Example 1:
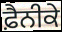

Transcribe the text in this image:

ਫ਼ੈਨੀਕੇ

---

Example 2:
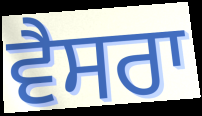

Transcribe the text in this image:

ਵੈਸਰਾ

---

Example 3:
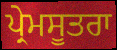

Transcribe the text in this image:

ਪ੍ਰੇਮਸੂਤਰਾ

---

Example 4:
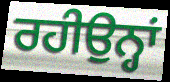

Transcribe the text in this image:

ਰਹੀਉਨ੍ਹਾਂ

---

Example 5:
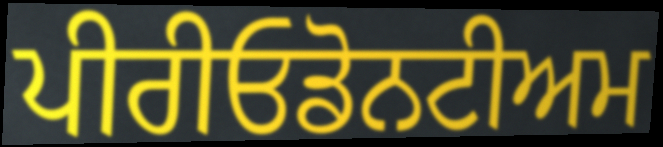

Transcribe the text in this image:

ਪੀਰੀਓਡੋਨਟੀਅਮ